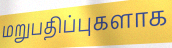
மறுபதிப்புகளாக